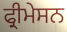
ਫ੍ਰੀਮੇਸਨ